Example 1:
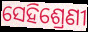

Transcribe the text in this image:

ସେହିଶ୍ରେଣୀ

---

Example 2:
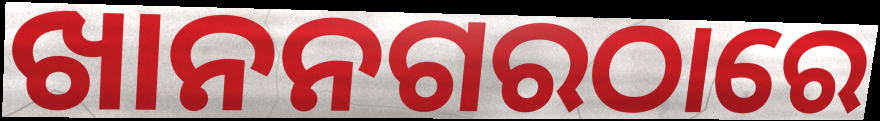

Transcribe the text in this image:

ଖାନନଗରଠାରେ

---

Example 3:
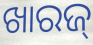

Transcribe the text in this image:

ଖାରଜ୍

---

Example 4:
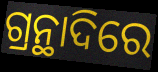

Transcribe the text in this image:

ଗ୍ରନ୍ଥାଦିରେ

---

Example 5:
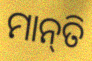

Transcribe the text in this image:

ମାନ୍‌ତି